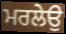
ਮਰਲੇਉ